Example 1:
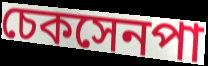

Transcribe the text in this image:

চেকসেনপা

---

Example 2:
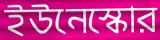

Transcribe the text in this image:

ইউনেস্কোর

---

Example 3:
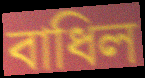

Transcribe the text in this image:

বাধিল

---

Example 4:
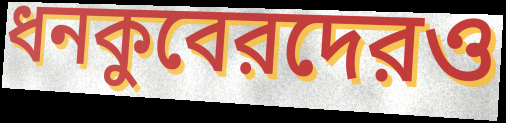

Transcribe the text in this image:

ধনকুবেরদেরও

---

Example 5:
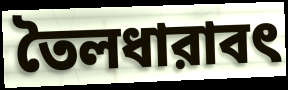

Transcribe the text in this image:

তৈলধারাবৎ